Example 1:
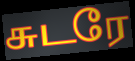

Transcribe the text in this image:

சுடரே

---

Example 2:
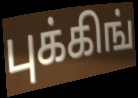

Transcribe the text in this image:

புக்கிங்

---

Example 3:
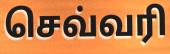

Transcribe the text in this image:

செவ்வரி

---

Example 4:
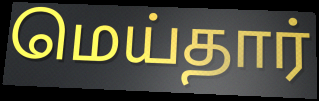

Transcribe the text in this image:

மெய்தார்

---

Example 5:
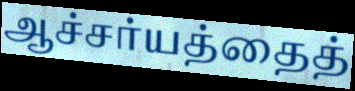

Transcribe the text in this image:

ஆச்சர்யத்தைத்